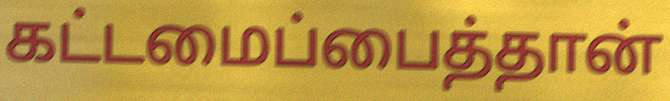
கட்டமைப்பைத்தான்